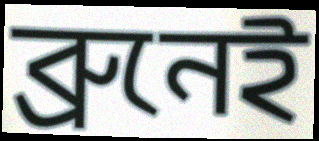
ব্ৰুনেই